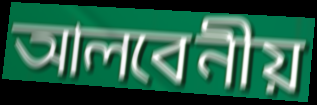
আলবেনীয়